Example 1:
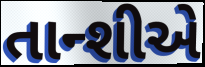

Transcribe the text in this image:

તાન્શીએ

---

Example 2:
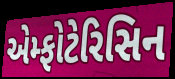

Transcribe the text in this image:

એમ્ફોટેરિસિન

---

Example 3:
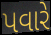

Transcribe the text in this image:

પવારે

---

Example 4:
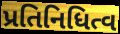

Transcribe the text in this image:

પ્રતિનિધિત્વ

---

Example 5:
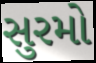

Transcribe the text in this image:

સુરમો